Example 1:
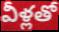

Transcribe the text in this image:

వీళ్లతో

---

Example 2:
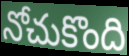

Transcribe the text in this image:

నోచుకొంది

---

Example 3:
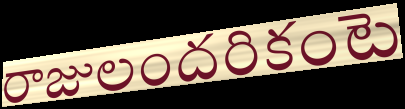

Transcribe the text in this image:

రాజులందరికంటె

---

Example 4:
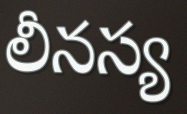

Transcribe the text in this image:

లీనస్య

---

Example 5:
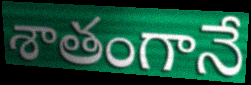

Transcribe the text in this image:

శాతంగానే